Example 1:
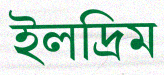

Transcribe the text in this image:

ইলদ্রিম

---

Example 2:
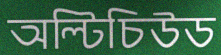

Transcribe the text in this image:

অল্টিচিউড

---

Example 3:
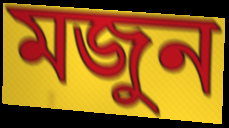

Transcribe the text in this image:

মজুন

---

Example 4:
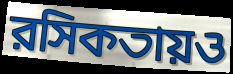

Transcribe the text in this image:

রসিকতায়ও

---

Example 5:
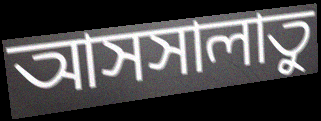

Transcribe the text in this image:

আসসালাতু